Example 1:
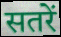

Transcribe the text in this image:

सतरें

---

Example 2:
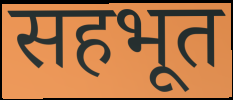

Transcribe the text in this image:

सहभूत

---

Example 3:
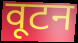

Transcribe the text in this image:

वूटन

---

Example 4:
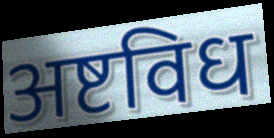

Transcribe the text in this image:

अष्टविध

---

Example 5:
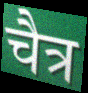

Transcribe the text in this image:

चैत्र